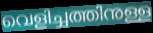
വെളിച്ചത്തിനുള്ള